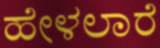
ಹೇಳಲಾರೆ